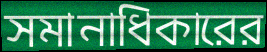
সমানাধিকারের